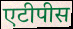
एटीपीस